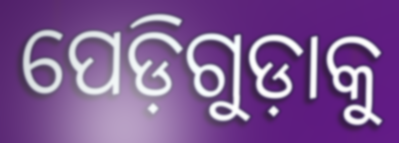
ପେଡ଼ିଗୁଡ଼ାକୁ